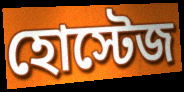
হোস্টেজ